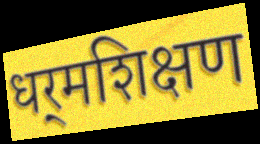
धर्मशिक्षण